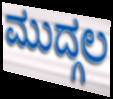
ಮುದ್ಗಲ